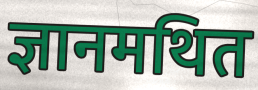
ज्ञानमथित